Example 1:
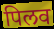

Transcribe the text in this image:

पिलव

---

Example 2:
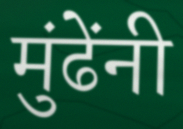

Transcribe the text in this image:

मुंढेंनी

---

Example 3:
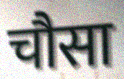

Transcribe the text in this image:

चौसा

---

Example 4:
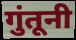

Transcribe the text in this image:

गुंतूनी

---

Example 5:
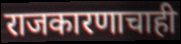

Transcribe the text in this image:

राजकारणाचाही